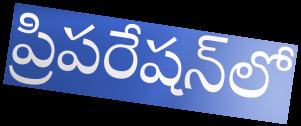
ప్రిపరేషన్‌లో